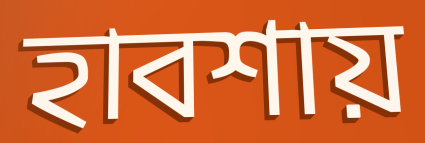
হাবশায়